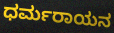
ಧರ್ಮರಾಯನ